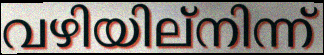
വഴിയില്നിന്ന്